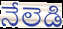
నేలెడి